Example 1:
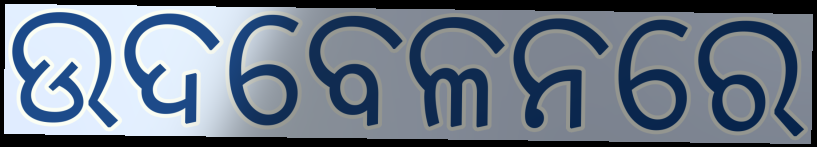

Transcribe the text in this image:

ଉଦବେଳନରେ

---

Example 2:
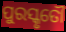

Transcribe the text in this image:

ପୁରସ୍କୃତୌ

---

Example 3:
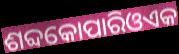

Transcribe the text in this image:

ଶବ୍ଦକୋପାରିଓଏକ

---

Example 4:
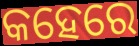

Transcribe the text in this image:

କହେରେ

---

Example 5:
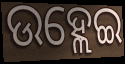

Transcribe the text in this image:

ଉହ୍ଲେଇ